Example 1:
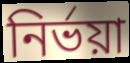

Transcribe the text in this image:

নির্ভয়া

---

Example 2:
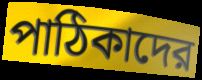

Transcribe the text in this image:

পাঠিকাদের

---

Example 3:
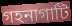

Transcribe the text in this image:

গহনাগাটি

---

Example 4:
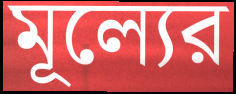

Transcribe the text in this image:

মূল্যের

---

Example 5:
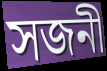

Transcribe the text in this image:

সজনী